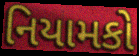
નિયામકો